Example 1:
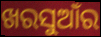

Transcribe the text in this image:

ଖରସୁଆଁର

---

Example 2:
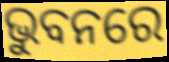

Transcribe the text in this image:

ଭୁବନରେ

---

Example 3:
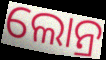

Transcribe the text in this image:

ଲୋନ୍ର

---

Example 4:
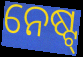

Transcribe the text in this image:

ନେଷ୍ଟ୍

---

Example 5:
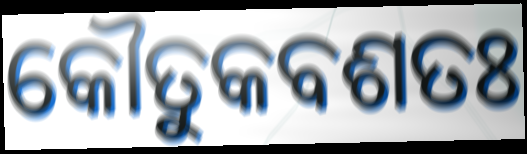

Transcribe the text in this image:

କୌତୁକବଶତଃ